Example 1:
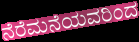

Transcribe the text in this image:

ನೆರೆಮನೆಯವರಿಂದ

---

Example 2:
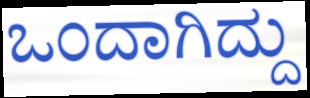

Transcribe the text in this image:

ಒಂದಾಗಿದ್ದು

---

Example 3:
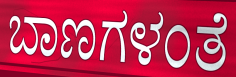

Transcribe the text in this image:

ಬಾಣಗಳಂತೆ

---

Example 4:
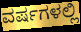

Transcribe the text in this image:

ವರ್ಷಗಳಲ್ಲಿ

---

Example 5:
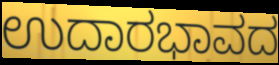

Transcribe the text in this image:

ಉದಾರಭಾವದ